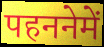
पहननेमें